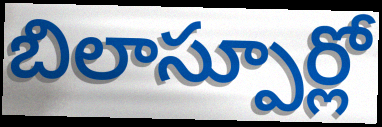
బిలాస్పూర్లో